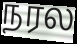
நரல